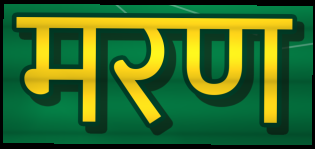
मरण